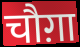
चौग़ा